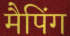
मैपिंग